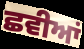
ਛਵੀਆਂ